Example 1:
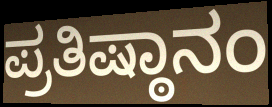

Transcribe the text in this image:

ಪ್ರತಿಷ್ಠಾನಂ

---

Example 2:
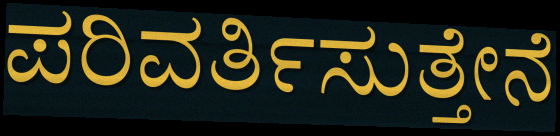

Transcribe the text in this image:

ಪರಿವರ್ತಿಸುತ್ತೇನೆ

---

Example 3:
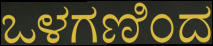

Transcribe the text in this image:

ಒಳಗಣಿಂದ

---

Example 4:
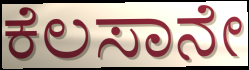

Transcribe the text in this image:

ಕೆಲಸಾನೇ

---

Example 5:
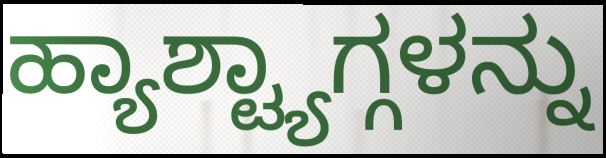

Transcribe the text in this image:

ಹ್ಯಾಶ್ಟ್ಯಾಗ್ಗಳನ್ನು